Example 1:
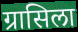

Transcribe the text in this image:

ग्रासिला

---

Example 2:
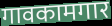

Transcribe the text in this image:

गावकामगार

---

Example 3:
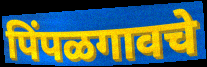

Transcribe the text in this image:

पिंपळगावचे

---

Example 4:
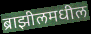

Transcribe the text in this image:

ब्राझीलमधील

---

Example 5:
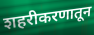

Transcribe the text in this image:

शहरीकरणातून